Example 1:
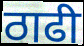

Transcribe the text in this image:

ठाढी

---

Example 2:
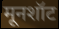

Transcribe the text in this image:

मूनशॉट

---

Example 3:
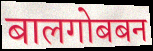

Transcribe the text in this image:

बालगोबबन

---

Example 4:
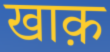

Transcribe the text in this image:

खाक़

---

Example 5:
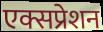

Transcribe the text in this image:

एक्सप्रेशन